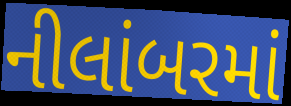
નીલાંબરમાં